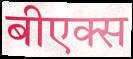
बीएक्स